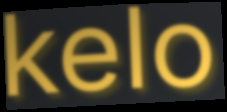
kelo